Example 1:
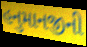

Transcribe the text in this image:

હનુમાનજીની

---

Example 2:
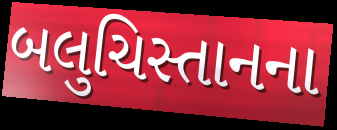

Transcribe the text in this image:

બલુચિસ્તાનના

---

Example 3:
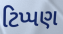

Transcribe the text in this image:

ટિપ્પણ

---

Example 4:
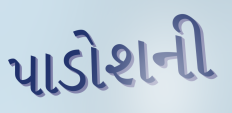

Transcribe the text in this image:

પાડોશની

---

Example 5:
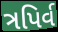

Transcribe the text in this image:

ત્રપિર્વ